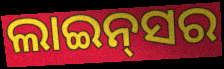
ଲାଇନ୍‍ସର